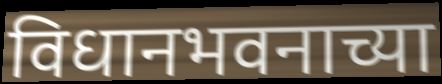
विधानभवनाच्या